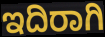
ಇದಿರಾಗಿ